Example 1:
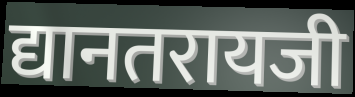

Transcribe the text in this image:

द्यानतरायजी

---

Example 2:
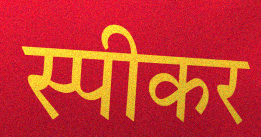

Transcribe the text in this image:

स्‍पीकर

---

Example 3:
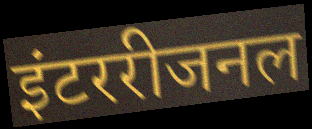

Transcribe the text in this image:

इंटररीजनल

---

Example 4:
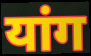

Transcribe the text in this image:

यांग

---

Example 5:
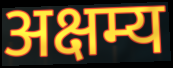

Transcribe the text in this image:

अक्षम्‍य